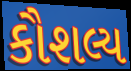
કૌશલ્ય